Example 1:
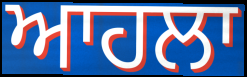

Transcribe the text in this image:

ਆਹਲਾ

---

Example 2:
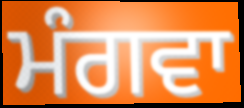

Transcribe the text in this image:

ਮੰਗਵਾ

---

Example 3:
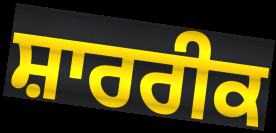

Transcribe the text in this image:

ਸ਼ਾਰਰੀਕ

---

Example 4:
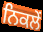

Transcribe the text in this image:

ਨਿਕਲੇਂ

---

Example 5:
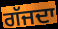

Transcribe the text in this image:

ਗੱਜਦਾ